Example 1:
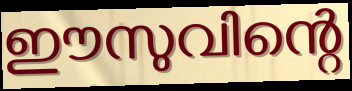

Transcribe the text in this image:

ഈസുവിന്റെ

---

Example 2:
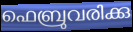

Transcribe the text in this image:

ഫെബ്രുവരിക്കു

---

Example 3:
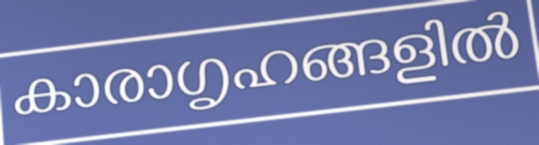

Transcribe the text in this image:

കാരാഗൃഹങ്ങളിൽ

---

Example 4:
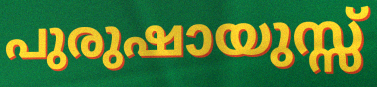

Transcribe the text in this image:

പുരുഷായുസ്സ്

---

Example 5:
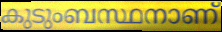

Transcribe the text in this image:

കുടുംബസ്ഥനാണ്